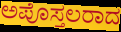
ಅಪೊಸ್ತಲರಾದ